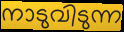
നാടുവിടുന്ന